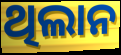
ଥିଲାନ